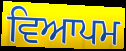
ਵਿਆਪਮ